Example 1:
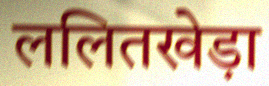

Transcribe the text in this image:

ललितखेड़ा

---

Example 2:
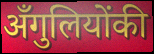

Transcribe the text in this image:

अँगुलियोंकी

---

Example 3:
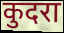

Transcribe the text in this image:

कुदरा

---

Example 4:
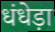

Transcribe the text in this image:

धंधेड़ा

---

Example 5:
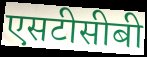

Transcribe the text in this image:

एसटीसीबी